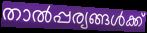
താൽപ്പര്യങ്ങൾക്ക്